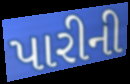
પારીની